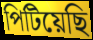
পিটিয়েছি